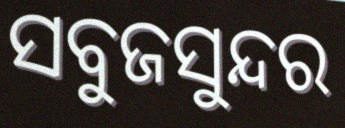
ସବୁଜସୁନ୍ଦର